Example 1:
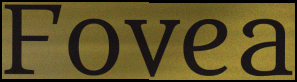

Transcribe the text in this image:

Fovea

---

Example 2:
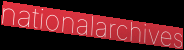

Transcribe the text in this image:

nationalarchives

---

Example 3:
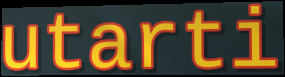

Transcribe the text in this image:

utarti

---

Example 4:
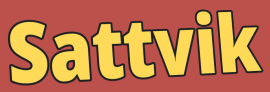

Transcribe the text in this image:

Sattvik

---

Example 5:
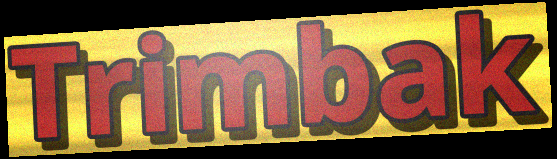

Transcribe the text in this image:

Trimbak